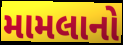
મામલાનો